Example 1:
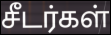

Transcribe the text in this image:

சீடர்கள்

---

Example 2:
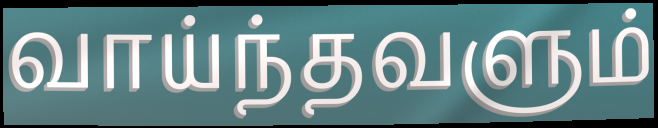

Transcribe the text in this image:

வாய்ந்தவளும்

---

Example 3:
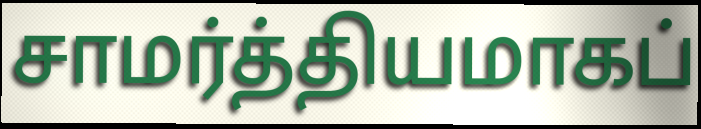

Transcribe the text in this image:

சாமர்த்தியமாகப்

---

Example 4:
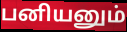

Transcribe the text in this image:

பனியனும்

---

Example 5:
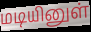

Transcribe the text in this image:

மடியினுள்